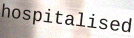
hospitalised